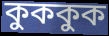
কুককুক